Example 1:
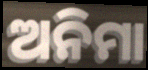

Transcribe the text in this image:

ଅନିମା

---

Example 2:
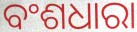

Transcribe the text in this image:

ବଂଶଧାରା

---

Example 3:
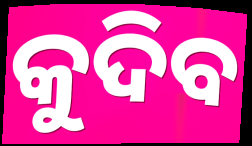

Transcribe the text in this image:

କୁଦିବ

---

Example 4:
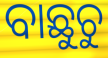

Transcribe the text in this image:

ବାଛୁଚୁ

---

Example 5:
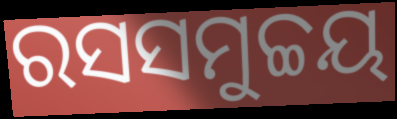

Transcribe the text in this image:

ରସସମୁଚ୍ଚୟ